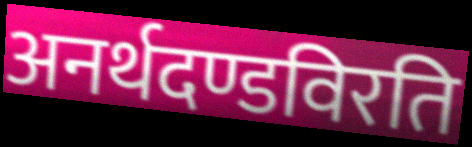
अनर्थदण्डविरति